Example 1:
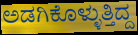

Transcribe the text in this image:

ಅಡಗಿಕೊಳ್ಳುತ್ತಿದ್ದ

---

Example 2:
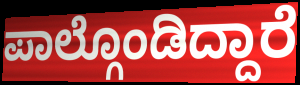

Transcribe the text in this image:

ಪಾಲ್ಗೊಂಡಿದ್ದಾರೆ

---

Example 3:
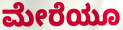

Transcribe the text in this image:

ಮೇರೆಯೂ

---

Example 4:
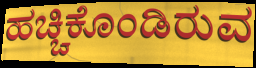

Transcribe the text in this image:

ಹಚ್ಚಿಕೊಂಡಿರುವ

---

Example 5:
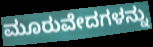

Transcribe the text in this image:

ಮೂರುವೇದಗಳನ್ನು